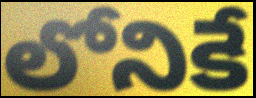
లోనికే